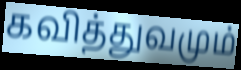
கவித்துவமும்